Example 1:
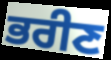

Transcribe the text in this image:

ਭਰੀਣ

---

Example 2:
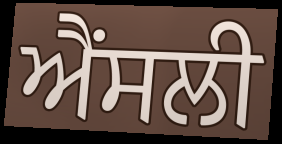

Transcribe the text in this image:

ਐਂਸਲੀ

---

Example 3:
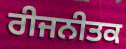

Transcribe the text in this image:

ਰੀਜਨੀਤਕ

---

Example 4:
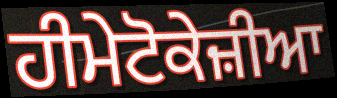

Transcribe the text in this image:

ਹੀਮੇਟੋਕੇਜ਼ੀਆ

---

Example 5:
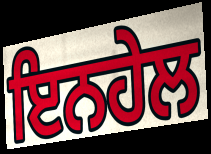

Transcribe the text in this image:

ਇਨਹੇਲ